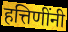
हत्तिणींनी